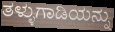
ತಳ್ಳುಗಾಡಿಯನ್ನು